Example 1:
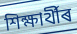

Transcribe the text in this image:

শিক্ষাৰ্থীৰ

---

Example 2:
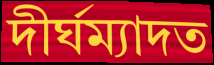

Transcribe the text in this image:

দীৰ্ঘম্যাদত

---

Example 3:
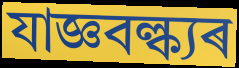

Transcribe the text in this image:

যাজ্ঞবল্ক্যৰ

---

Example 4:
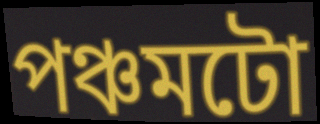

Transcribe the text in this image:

পঞ্চমটো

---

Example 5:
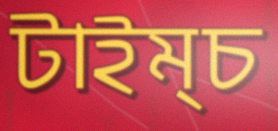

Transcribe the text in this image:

টাইম্‌চ